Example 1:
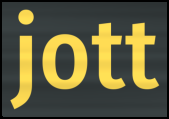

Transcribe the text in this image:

jott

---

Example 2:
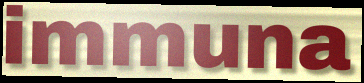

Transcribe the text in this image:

immuna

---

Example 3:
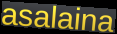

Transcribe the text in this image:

asalaina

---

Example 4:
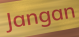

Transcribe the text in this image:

Jangan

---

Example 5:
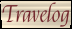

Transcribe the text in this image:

Travelog